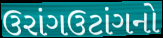
ઉરાંગઉટાંગનો